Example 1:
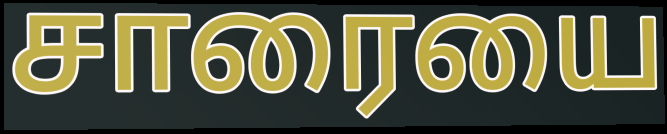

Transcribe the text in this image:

சாரையை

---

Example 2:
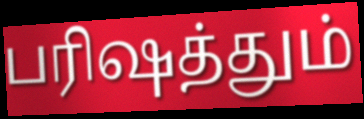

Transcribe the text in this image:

பரிஷத்தும்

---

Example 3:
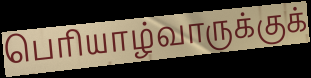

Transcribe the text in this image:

பெரியாழ்வாருக்குக்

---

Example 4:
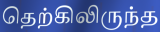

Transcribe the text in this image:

தெற்கிலிருந்த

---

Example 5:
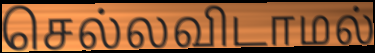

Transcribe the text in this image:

செல்லவிடாமல்